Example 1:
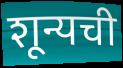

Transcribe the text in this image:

शून्यची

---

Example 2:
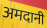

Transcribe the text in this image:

अमदानी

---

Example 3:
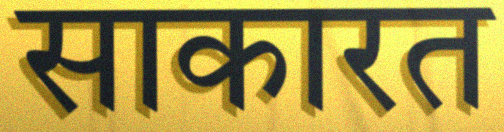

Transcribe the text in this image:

साकारत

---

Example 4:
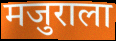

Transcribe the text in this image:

मजुराला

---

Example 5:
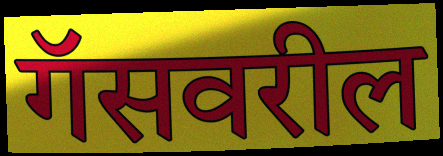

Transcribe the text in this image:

गॅसवरील